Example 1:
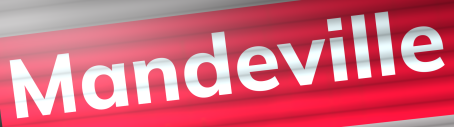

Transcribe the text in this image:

Mandeville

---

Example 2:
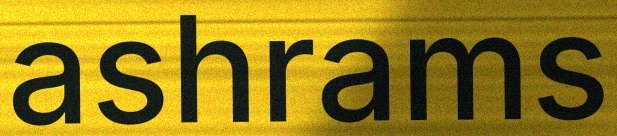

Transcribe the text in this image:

ashrams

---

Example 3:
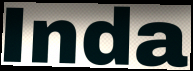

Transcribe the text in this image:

Inda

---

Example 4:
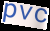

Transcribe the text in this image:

pvc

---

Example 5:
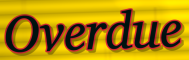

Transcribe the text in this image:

Overdue